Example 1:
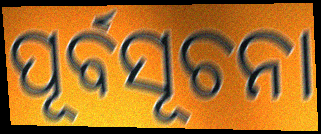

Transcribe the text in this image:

ପୂର୍ବସୂଚନା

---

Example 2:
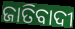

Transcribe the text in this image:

ଜାତିବାଦୀ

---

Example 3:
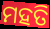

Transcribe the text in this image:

ମହତି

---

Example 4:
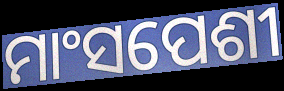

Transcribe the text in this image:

ମାଂସପେଶୀ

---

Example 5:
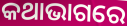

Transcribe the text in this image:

କଥାଭାଗରେ